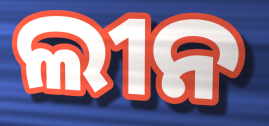
ଲୀନ